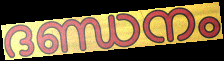
ദണ്ഡനം